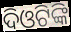
ଦିଓଟିଙ୍କି